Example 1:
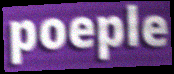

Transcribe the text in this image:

poeple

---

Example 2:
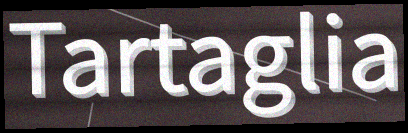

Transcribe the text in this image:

Tartaglia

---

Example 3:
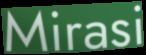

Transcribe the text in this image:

Mirasi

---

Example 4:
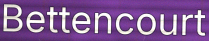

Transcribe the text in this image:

Bettencourt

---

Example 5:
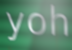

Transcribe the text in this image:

yoh